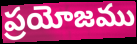
ప్రయోజము